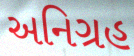
અનિગ્રહ